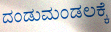
ದಂಡುಮಂಡಲಕ್ಕೆ